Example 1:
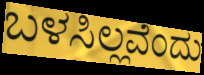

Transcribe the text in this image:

ಬಳಸಿಲ್ಲವೆಂದು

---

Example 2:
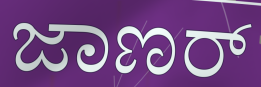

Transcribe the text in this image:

ಜಾಣರ್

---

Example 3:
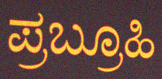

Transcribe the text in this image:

ಪ್ರಬ್ರೂಹಿ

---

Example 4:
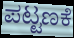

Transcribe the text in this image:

ಪಟ್ಟಣಕೆ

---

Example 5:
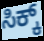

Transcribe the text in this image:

ಸಿಕ್ಕ್